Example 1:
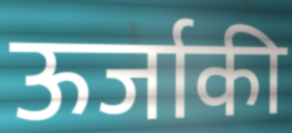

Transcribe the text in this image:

ऊर्जाकी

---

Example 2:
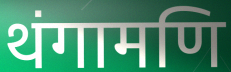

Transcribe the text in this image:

थंगामणि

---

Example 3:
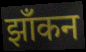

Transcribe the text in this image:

झाँकन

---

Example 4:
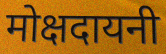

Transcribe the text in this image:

मोक्षदायनी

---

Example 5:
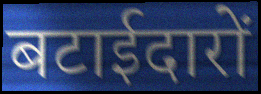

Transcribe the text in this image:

बटाईदारों